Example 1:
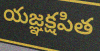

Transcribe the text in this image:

యజ్ఞక్షపిత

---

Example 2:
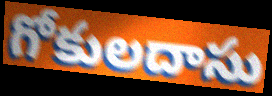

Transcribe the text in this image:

గోకులదాసు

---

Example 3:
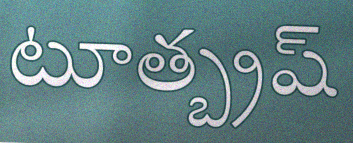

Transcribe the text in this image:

టూత్బ్రష్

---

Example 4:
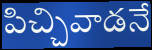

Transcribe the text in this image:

పిచ్చివాడనే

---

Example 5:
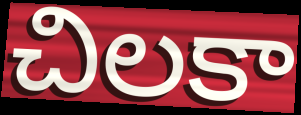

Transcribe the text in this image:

చిలకా